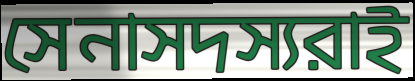
সেনাসদস্যরাই